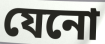
যেনো